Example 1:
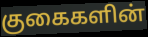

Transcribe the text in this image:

குகைகளின்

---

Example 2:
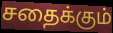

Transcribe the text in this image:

சதைக்கும்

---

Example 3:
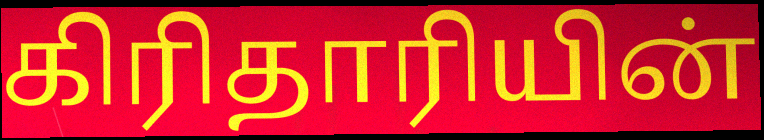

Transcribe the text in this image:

கிரிதாரியின்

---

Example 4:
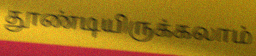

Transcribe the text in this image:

தூண்டியிருக்கலாம்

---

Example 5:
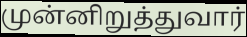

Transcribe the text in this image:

முன்னிறுத்துவார்